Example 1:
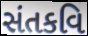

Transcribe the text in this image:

સંતકવિ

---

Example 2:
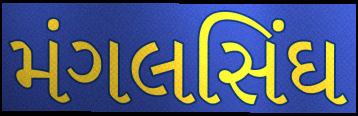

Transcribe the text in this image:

મંગલસિંઘ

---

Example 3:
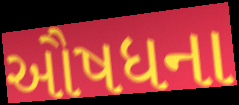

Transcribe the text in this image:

ઔષધના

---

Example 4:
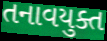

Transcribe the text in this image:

તનાવયુક્ત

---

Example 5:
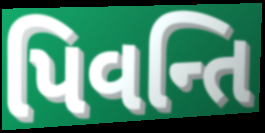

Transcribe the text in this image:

પિવન્તિ